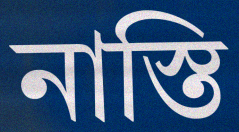
নাস্তি